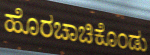
ಹೊರಚಾಚಿಕೊಂಡು